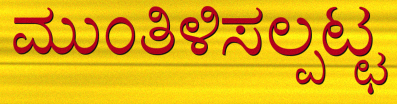
ಮುಂತಿಳಿಸಲ್ಪಟ್ಟ